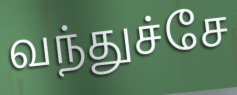
வந்துச்சே